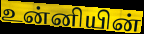
உன்னியின்